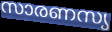
സാരണസ്യ